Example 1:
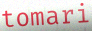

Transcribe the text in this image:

tomari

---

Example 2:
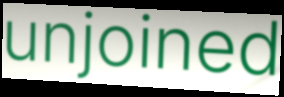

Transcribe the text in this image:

unjoined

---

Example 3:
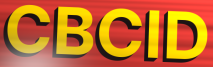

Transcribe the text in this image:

CBCID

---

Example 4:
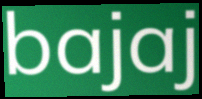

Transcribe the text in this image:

bajaj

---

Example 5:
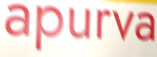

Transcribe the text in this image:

apurva